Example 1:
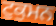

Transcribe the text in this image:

ਟੁਕੁਮਨ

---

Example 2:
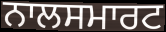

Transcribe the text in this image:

ਨਾਲਸਮਾਰਟ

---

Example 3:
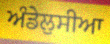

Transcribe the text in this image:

ਅੰਡੇਲੁਸੀਆ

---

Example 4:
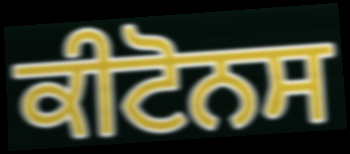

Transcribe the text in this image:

ਕੀਟੋਨਸ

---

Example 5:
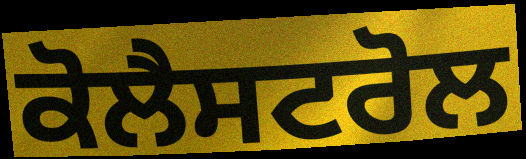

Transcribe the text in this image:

ਕੋਲੈਸਟਰੋਲ